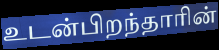
உடன்பிறந்தாரின்